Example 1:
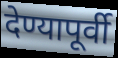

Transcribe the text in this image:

देण्यापूर्वी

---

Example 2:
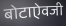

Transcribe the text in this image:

बोटाऐवजी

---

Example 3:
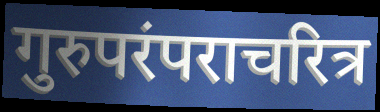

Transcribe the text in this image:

गुरुपरंपराचरित्र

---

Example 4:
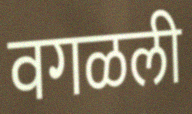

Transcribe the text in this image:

वगळली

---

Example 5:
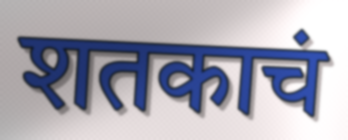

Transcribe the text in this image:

शतकाचं